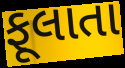
ફૂલાતા